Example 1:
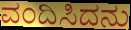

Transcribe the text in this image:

ವಂದಿಸಿದನು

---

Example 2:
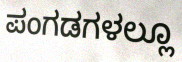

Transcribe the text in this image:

ಪಂಗಡಗಳಲ್ಲೂ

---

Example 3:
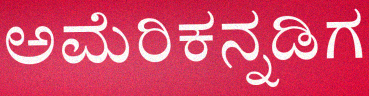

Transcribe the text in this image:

ಅಮೆರಿಕನ್ನಡಿಗ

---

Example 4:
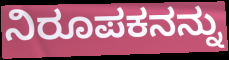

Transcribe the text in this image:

ನಿರೂಪಕನನ್ನು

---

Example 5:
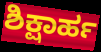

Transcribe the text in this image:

ಶಿಕ್ಷಾರ್ಹ